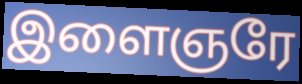
இளைஞரே